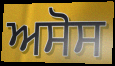
ਅਸੋਸ